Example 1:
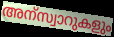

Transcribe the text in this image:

അന്സ്വാറുകളും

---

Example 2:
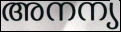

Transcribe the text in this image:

അനന്യ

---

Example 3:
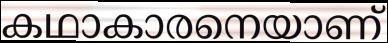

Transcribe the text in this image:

കഥാകാരനെയാണ്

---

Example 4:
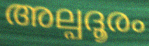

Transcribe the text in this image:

അല്പദൂരം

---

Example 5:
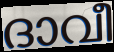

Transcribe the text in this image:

ദാവീ